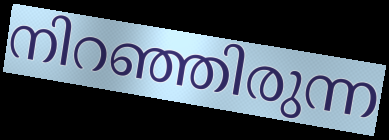
നിറഞ്ഞിരുന്ന